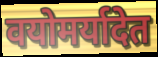
वयोमर्यादेत